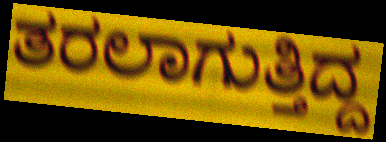
ತರಲಾಗುತ್ತಿದ್ದ